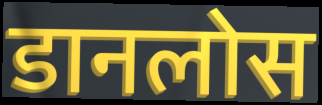
डानलोस